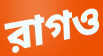
রাগও